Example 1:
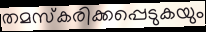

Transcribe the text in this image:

തമസ്കരിക്കപ്പെടുകയും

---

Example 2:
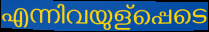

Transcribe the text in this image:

എന്നിവയുള്പ്പെടെ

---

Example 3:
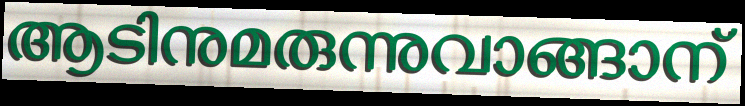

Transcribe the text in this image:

ആടിനുമരുന്നുവാങ്ങാന്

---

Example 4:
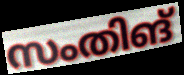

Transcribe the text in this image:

സംതിങ്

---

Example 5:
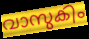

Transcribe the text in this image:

വാസുകിം